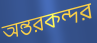
অন্তরকন্দর